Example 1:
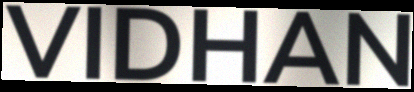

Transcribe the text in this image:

VIDHAN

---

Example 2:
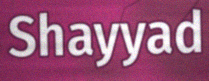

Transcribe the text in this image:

Shayyad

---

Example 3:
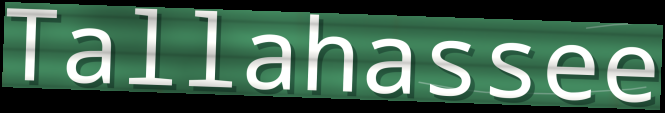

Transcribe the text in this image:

Tallahassee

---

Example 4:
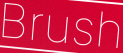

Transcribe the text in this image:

Brush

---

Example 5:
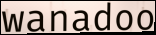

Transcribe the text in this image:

wanadoo